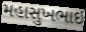
મહાસુખભાઇ